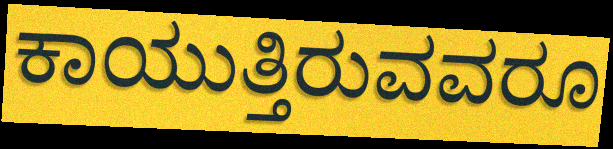
ಕಾಯುತ್ತಿರುವವರೂ